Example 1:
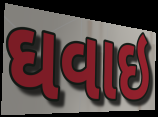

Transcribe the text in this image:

ઘવાઇ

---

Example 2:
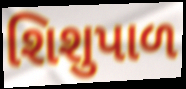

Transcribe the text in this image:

શિશુપાળ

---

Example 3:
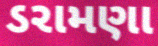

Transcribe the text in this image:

ડરામણા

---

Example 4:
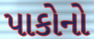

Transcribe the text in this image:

પાકોનો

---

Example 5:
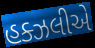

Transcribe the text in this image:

હક્ઝલીએ